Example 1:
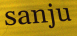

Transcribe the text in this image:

sanju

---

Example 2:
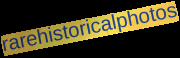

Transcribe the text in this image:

rarehistoricalphotos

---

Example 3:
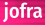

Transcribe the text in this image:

jofra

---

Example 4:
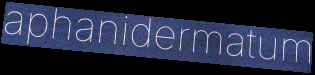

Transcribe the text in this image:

aphanidermatum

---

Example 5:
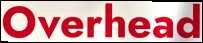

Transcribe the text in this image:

Overhead